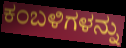
ಕಂಬಳಿಗಳನ್ನು